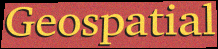
Geospatial